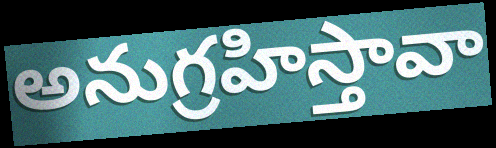
అనుగ్రహిస్తావా